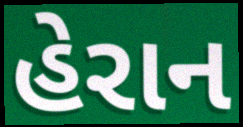
હેરાન